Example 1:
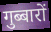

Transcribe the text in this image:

गुब्बारों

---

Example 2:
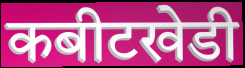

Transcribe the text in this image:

कबीटखेडी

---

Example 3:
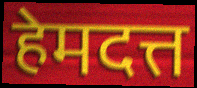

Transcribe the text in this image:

हेमदत्त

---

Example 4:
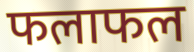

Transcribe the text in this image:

फलाफल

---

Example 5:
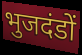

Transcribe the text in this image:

भुजदंडों